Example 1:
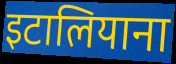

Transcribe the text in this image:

इटालियाना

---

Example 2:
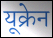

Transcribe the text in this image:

यूक्रेन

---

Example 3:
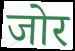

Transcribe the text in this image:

जोर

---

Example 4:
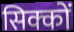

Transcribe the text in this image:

सिक्‍कों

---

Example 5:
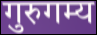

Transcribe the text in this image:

गुरुगम्य